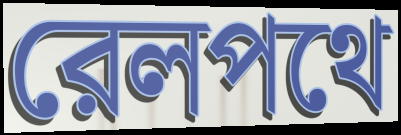
রেলপথে